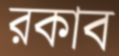
রকাব